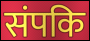
संपकि